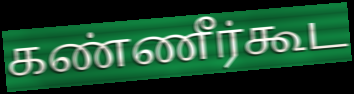
கண்ணீர்கூட